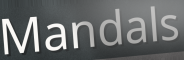
Mandals